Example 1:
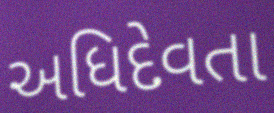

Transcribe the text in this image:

અધિદેવતા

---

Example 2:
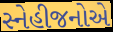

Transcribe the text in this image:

સ્નેહીજનોએ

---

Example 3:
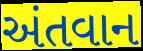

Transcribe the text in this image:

અંતવાન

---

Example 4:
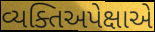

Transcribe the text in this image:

વ્યક્તિઅપેક્ષાએ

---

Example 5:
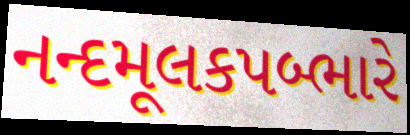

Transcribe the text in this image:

નન્દમૂલકપબ્ભારે